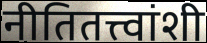
नीतितत्त्वांशी